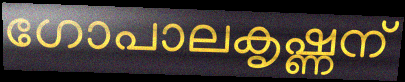
ഗോപാലകൃഷ്ണന്